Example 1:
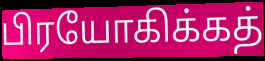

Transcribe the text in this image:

பிரயோகிக்கத்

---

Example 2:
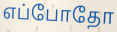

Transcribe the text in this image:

எப்போதோ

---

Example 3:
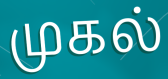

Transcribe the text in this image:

முகல்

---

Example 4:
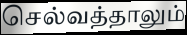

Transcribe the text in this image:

செல்வத்தாலும்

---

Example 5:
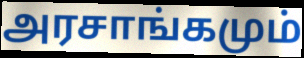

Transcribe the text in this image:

அரசாங்கமும்